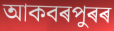
আকবৰপুৰৰ